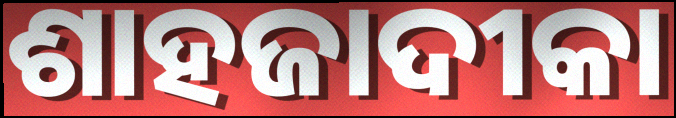
ଶାହଜାଦୀକା